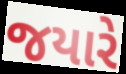
જયારે